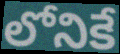
లోనికే